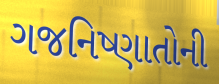
ગજનિષ્ણાતોની